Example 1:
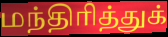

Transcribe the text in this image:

மந்திரித்துக்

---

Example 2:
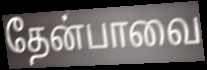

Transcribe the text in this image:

தேன்பாவை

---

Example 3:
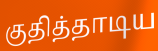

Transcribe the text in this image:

குதித்தாடிய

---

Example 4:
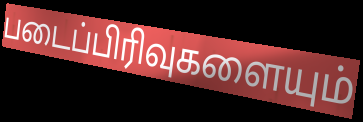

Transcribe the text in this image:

படைப்பிரிவுகளையும்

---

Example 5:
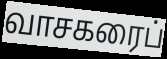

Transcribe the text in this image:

வாசகரைப்